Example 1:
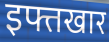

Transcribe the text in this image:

इफ्तखार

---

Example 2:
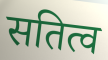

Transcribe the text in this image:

सतित्व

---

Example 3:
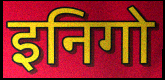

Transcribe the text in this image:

इनिगो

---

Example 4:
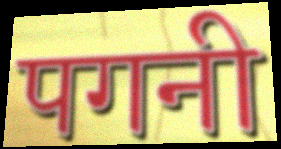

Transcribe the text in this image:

पगनी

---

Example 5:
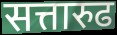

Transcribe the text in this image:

सत्तारुढ